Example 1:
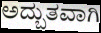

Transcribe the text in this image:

ಅದ್ಬುತವಾಗಿ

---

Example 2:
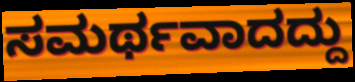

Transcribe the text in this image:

ಸಮರ್ಥವಾದದ್ದು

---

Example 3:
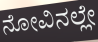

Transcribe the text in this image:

ನೋವಿನಲ್ಲೇ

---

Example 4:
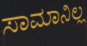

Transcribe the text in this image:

ಸಾಮಾನಿಲ್ಲ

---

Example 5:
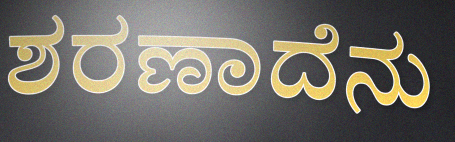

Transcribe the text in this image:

ಶರಣಾದೆನು